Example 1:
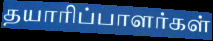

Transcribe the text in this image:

தயாரிப்பாளர்கள்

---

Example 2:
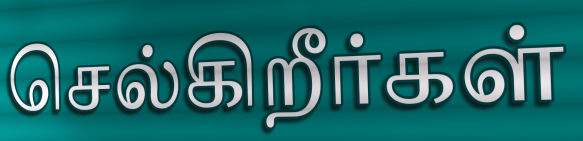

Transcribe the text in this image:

செல்கிறீர்கள்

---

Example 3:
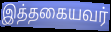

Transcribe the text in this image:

இத்தகையவர்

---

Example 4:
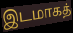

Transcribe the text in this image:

இடமாகத்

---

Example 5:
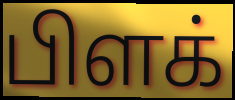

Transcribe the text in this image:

பிளக்